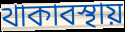
থাকাবস্থায়